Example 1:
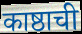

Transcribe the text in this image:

काष्ठाची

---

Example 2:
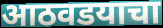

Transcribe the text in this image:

आठवडयाचा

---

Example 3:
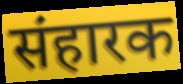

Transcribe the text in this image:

संहारक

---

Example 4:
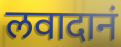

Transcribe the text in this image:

लवादानं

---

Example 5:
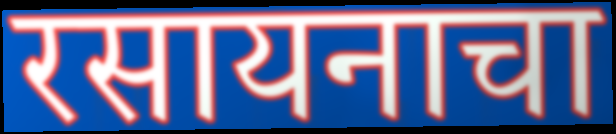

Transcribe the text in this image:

रसायनाचा